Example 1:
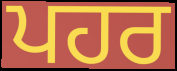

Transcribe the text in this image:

ਪਹਰ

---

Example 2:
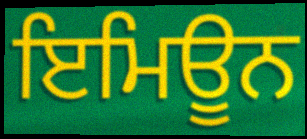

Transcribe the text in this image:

ਇਮਿਊਨ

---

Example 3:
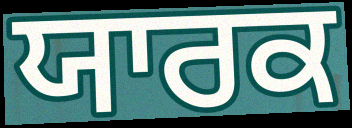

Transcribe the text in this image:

ਯਾਰਕ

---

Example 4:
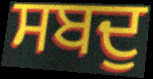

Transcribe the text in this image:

ਸਬਦੁ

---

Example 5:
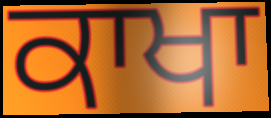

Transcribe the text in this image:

ਕਾਖਾ